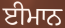
ਈਮਾਨ